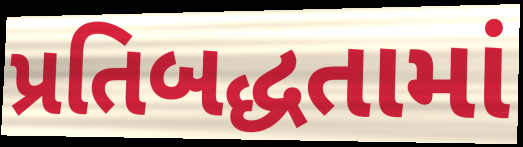
પ્રતિબદ્ધતામાં